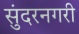
सुंदरनगरी